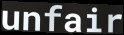
unfair